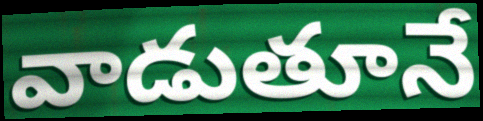
వాడుతూనే